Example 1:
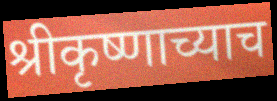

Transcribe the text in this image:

श्रीकृष्णाच्याच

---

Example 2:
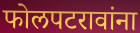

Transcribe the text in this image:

फोलपटरावांना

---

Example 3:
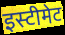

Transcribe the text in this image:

इस्टीमेट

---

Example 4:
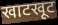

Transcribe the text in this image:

खाटखूट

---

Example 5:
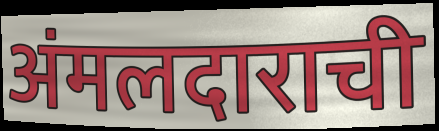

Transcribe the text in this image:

अंमलदाराची